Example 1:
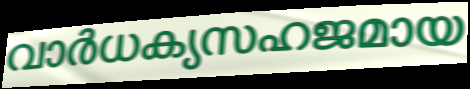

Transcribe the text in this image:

വാർധക്യസഹജമായ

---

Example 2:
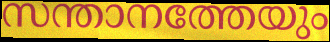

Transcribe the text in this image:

സന്താനത്തേയും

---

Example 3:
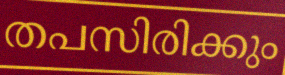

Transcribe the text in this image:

തപസിരിക്കും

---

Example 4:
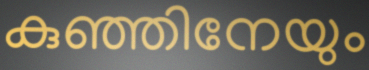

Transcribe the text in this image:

കുഞ്ഞിനേയും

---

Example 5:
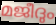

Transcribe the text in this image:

മജീദും